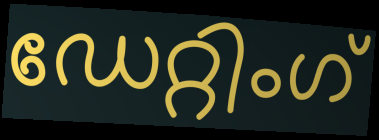
ഡേറ്റിംഗ്